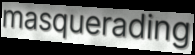
masquerading